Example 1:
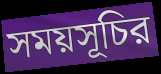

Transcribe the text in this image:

সময়সূচির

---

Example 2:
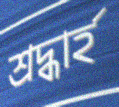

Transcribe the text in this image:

শ্রদ্ধার্হ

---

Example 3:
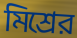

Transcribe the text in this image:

মিশ্রের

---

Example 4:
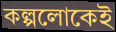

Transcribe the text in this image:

কল্পলোকেই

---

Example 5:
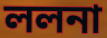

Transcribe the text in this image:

ললনা